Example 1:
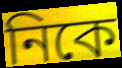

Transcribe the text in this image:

নিকে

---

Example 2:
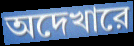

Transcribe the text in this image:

অদেখারে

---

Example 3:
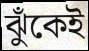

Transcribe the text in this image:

ঝুঁকেই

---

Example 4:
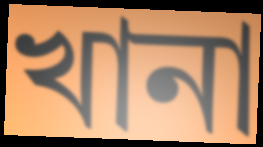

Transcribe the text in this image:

খানা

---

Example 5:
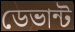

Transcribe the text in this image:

ডেভান্ট